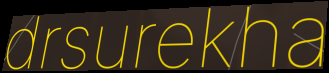
drsurekha